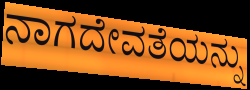
ನಾಗದೇವತೆಯನ್ನು